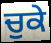
ਚੁਕੇ